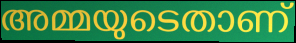
അമ്മയുടെതാണ്